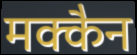
मक्कैन